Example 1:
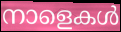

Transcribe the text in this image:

നാളെകൾ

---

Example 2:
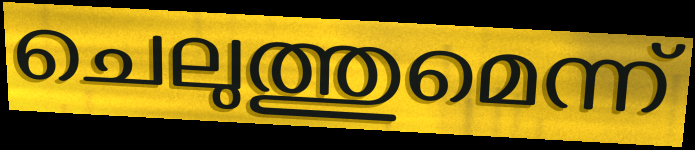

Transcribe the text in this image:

ചെലുത്തുമെന്ന്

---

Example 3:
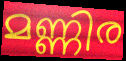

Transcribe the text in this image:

മണ്ണിര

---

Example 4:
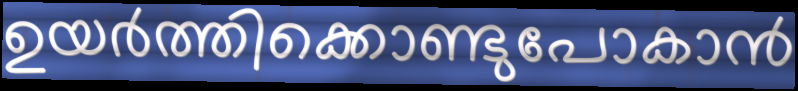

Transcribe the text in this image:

ഉയർത്തിക്കൊണ്ടുപോകാൻ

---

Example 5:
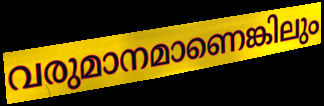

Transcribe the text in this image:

വരുമാനമാണെങ്കിലും